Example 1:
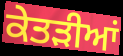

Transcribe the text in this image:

ਕੇਤੜੀਆਂ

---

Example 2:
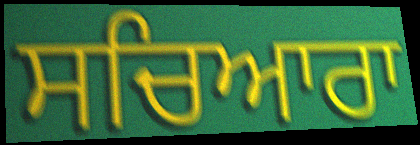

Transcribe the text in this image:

ਸਚਿਆਰਾ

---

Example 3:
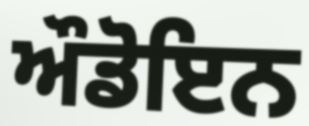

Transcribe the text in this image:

ਔਡੋਇਨ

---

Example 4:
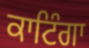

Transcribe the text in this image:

ਕਾਟਿੰਗਾ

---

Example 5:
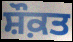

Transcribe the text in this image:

ਸ਼ੌਕ਼ਤ